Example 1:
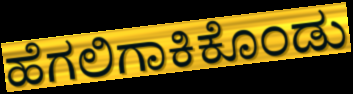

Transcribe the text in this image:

ಹೆಗಲಿಗಾಕಿಕೊಂಡು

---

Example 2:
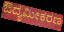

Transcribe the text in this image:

ಔದ್ಯಮೀಕರಣ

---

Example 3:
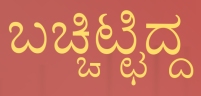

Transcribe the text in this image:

ಬಚ್ಚಿಟ್ಟಿದ್ದ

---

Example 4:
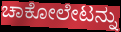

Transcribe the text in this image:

ಚಾಕೋಲೇಟನ್ನು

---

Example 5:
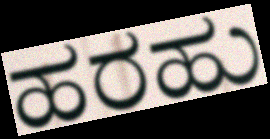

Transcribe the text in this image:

ಹರಹು